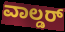
ವಾಲ್ಡರ್